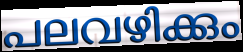
പലവഴിക്കും